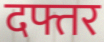
दफ्तर